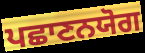
ਪਛਾਣਨਯੋਗ